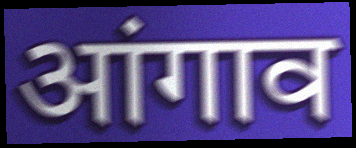
आंगाव